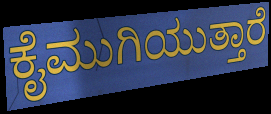
ಕೈಮುಗಿಯುತ್ತಾರೆ